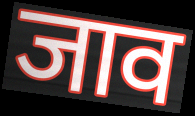
जाव